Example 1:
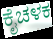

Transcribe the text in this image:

ಕೈಚಳಕ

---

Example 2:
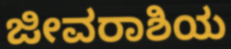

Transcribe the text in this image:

ಜೀವರಾಶಿಯ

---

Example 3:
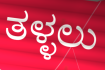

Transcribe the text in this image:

ತಳ್ಳಲು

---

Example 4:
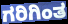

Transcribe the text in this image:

ಗರಿಗಿಂತ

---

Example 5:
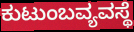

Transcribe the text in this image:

ಕುಟುಂಬವ್ಯವಸ್ಥೆ